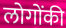
लोगोंकी